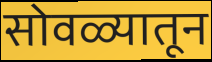
सोवळ्यातून